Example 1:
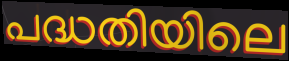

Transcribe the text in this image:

പദ്ധതിയിലെ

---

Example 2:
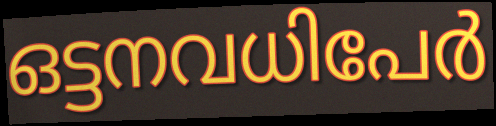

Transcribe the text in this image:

ഒട്ടനവധിപേർ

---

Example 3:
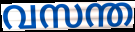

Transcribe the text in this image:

വസന്ത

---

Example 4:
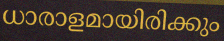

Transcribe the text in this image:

ധാരാളമായിരിക്കും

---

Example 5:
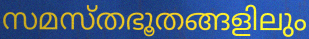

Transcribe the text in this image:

സമസ്തഭൂതങ്ങളിലും